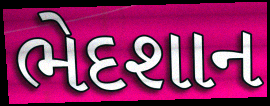
ભેદશાન